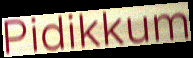
Pidikkum